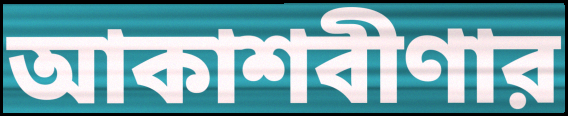
আকাশবীণার